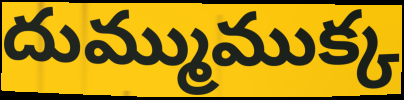
దుమ్ముముక్క